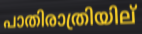
പാതിരാത്രിയില്